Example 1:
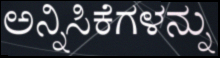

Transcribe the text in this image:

ಅನ್ನಿಸಿಕೆಗಳನ್ನು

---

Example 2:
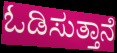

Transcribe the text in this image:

ಓಡಿಸುತ್ತಾನೆ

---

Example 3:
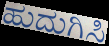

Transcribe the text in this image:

ಹುದುಗಿಸಿ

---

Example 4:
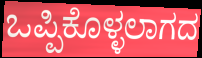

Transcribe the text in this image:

ಒಪ್ಪಿಕೊಳ್ಳಲಾಗದ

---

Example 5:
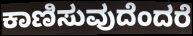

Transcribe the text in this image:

ಕಾಣಿಸುವುದೆಂದರೆ